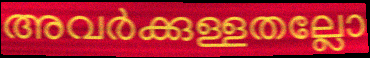
അവർക്കുള്ളതല്ലോ